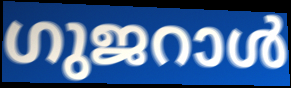
ഗുജറാൾ